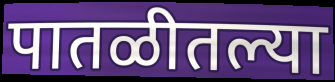
पातळीतल्या